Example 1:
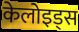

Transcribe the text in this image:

केलोइड्स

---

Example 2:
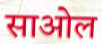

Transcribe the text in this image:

साओल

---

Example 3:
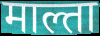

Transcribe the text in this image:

माल्ता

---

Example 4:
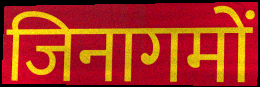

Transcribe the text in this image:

जिनागमों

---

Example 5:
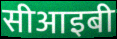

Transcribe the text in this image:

सीआइबी